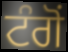
ਟੰਗੋਂ